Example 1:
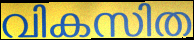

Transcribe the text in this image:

വികസിത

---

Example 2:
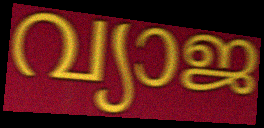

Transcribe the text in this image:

വ്യാജ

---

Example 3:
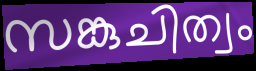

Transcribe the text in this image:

സങ്കുചിത്വം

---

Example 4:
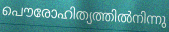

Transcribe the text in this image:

പൌരോഹിത്യത്തിൽനിന്നു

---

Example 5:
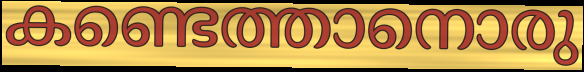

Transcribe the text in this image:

കണ്ടെത്താനൊരു